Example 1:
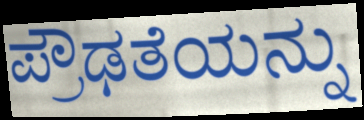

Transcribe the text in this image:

ಪ್ರೌಢತೆಯನ್ನು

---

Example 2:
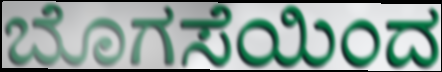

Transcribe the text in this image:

ಬೊಗಸೆಯಿಂದ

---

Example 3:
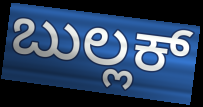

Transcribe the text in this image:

ಬುಲ್ಲಕ್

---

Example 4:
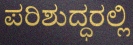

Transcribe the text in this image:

ಪರಿಶುದ್ಧರಲ್ಲಿ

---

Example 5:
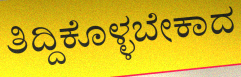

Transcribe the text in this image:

ತಿದ್ದಿಕೊಳ್ಳಬೇಕಾದ